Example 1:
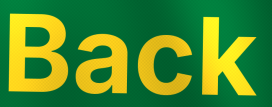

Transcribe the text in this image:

Back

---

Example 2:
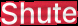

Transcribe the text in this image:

Shute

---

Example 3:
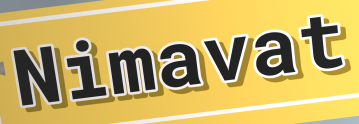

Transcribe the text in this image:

Nimavat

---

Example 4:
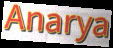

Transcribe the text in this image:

Anarya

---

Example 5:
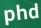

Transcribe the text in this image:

phd